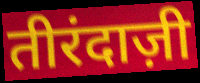
तीरंदाज़ी